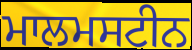
ਮਾਲਮਸਟੀਨ